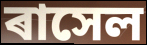
ৰাসেল